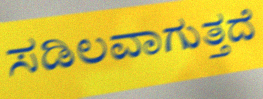
ಸಡಿಲವಾಗುತ್ತದೆ